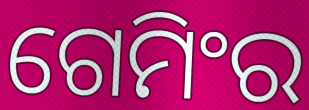
ଗେମିଂର